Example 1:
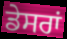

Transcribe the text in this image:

ਡੇਸਰਾਂ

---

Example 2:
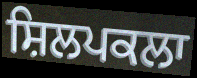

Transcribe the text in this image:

ਸ਼ਿਲਪਕਲਾ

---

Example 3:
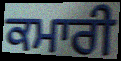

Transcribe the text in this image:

ਕਮਾਰੀ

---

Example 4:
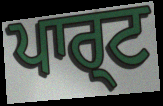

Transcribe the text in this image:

ਪਾਰ੍ਟ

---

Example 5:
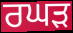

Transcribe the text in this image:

ਰਘੜ